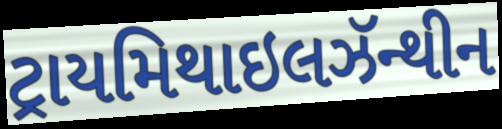
ટ્રાયમિથાઇલઝૅન્થીન